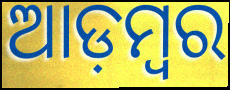
ଆଡ଼ମ୍ୱର